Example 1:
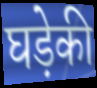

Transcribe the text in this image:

घड़ेकी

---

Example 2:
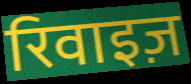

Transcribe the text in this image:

रिवाइज़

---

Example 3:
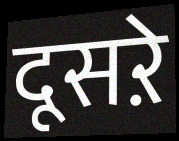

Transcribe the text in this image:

दूसऱे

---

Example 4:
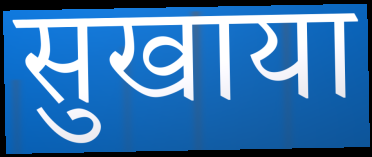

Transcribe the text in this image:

सुखाया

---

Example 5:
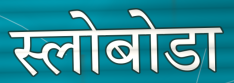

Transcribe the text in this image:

स्लोबोडा